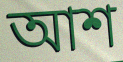
আশ